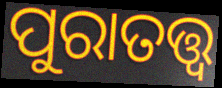
ପୁରାତତ୍ତ୍ୱ